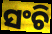
ସଂଚି